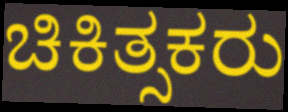
ಚಿಕಿತ್ಸಕರು